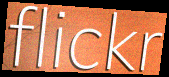
flickr